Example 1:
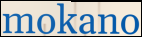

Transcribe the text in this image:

mokano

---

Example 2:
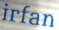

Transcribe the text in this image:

irfan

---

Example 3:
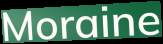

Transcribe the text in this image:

Moraine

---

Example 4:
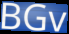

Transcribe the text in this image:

BGv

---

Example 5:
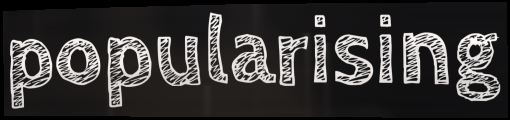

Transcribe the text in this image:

popularising